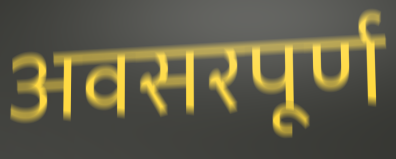
अवसरपूर्ण